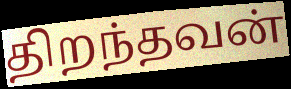
திறந்தவன்